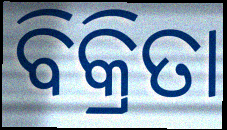
ବିକ୍ରିତା